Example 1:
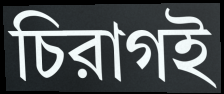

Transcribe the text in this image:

চিরাগই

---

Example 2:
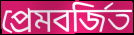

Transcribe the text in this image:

প্রেমবর্জিত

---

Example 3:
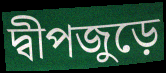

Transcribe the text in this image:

দ্বীপজুড়ে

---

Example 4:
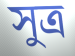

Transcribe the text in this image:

সুত্র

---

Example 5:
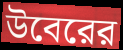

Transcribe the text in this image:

উবেরের